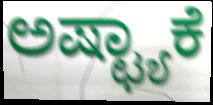
ಅಷ್ಟ್ಯಾಕೆ